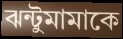
ঝন্টুমামাকে